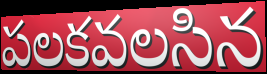
పలకవలసిన